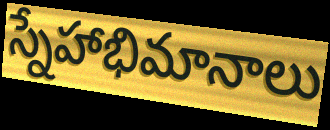
స్నేహాభిమానాలు